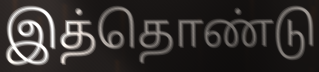
இத்தொண்டு